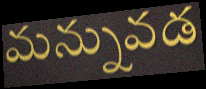
మన్నువడ